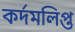
কর্দমলিপ্ত